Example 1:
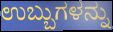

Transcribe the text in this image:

ಉಬ್ಬುಗಳನ್ನು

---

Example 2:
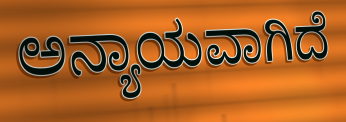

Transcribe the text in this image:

ಅನ್ಯಾಯವಾಗಿದೆ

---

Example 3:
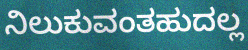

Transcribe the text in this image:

ನಿಲುಕುವಂತಹುದಲ್ಲ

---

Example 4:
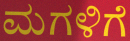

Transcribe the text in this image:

ಮಗಳಿಗೆ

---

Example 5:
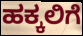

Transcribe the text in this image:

ಹಕ್ಕಲಿಗೆ